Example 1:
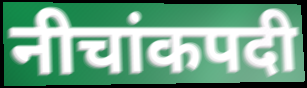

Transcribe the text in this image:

नीचांकपदी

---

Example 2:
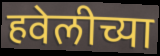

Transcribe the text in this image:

हवेलीच्या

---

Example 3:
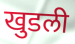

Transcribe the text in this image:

खुडली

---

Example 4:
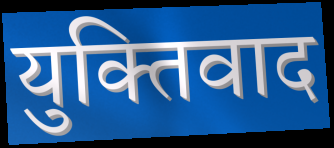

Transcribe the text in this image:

युक्‍तिवाद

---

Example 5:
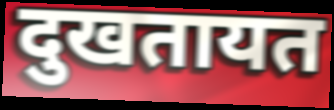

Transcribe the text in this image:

दुखतायत